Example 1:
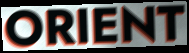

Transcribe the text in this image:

ORIENT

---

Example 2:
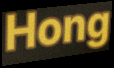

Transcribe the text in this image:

Hong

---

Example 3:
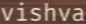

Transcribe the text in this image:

vishva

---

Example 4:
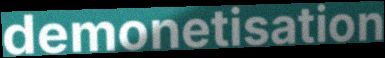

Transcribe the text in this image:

demonetisation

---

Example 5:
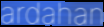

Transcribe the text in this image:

ardahan